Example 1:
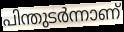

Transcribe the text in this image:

പിന്തുടർന്നാണ്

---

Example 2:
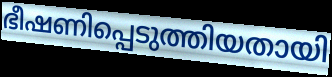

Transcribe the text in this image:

ഭീഷണിപ്പെടുത്തിയതായി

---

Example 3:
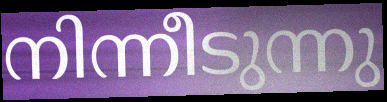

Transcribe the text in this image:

നിന്നീടുന്നു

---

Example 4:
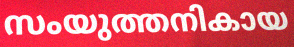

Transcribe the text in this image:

സംയുത്തനികായ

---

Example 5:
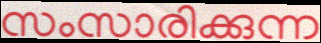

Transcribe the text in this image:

സംസാരിക്കുന്ന